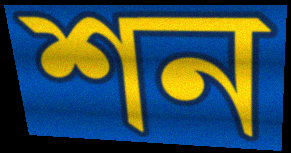
শন